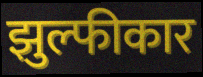
झुल्फीकार